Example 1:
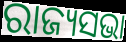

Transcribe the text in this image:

ରାଜ୍ୟସଭା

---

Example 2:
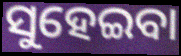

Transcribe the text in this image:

ସୁହେଇବା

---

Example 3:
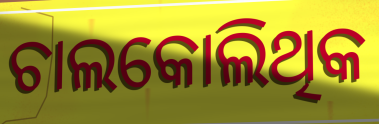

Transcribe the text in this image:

ଚାଲକୋଲିଥିକ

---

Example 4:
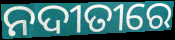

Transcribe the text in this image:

ନଦୀତୀରେ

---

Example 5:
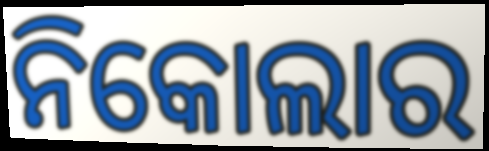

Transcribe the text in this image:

ନିକୋଲାର